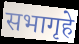
सभागृहे